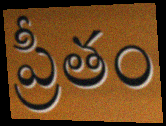
ప్రీతం